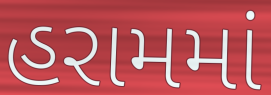
હરામમાં